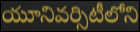
యూనివర్సిటీలోని